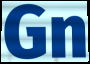
Gn